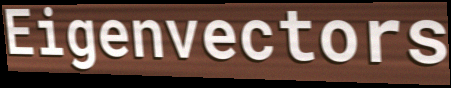
Eigenvectors